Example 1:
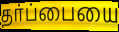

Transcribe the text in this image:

தர்ப்பையை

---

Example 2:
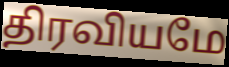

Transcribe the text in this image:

திரவியமே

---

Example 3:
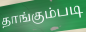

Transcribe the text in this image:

தாங்கும்படி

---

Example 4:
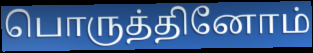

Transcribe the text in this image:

பொருத்தினோம்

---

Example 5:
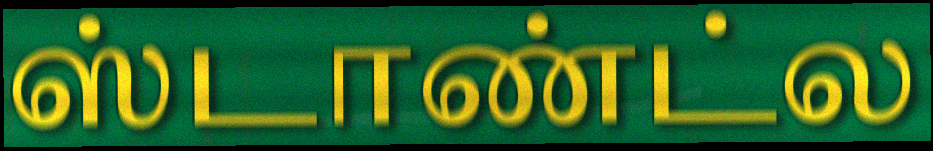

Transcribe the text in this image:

ஸ்டாண்ட்ல